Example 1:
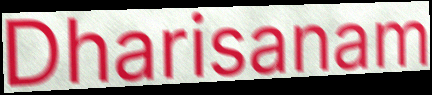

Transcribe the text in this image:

Dharisanam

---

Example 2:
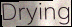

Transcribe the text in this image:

Drying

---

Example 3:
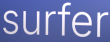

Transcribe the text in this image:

surfer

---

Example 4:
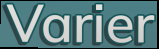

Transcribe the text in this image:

Varier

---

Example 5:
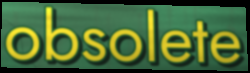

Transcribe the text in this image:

obsolete